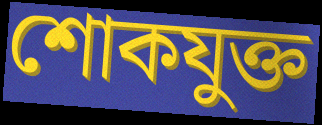
শোকযুক্ত